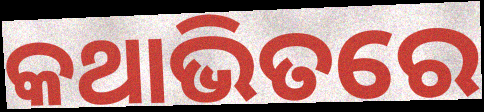
କଥାଭିତରେ